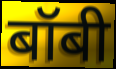
बॉबी